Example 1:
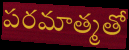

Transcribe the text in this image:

పరమాత్మతో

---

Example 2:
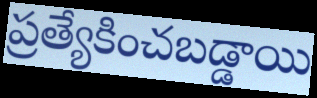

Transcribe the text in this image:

ప్రత్యేకించబడ్డాయి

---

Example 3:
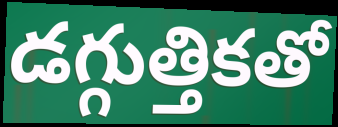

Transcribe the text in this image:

డగ్గుత్తికతో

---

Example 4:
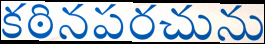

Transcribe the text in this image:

కఠినపరచును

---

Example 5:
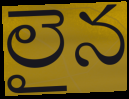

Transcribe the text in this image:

లైన